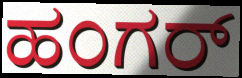
ಹಂಗರ್